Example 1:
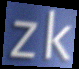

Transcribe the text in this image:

zk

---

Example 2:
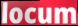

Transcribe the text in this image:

locum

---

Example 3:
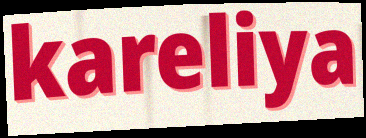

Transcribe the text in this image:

kareliya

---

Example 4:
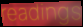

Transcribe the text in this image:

readings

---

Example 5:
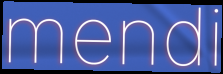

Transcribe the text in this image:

mendi